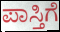
ಪಾಸ್ತಿಗೆ